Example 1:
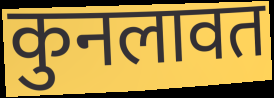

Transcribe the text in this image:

कुनलावत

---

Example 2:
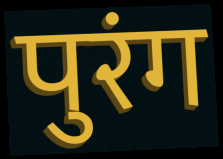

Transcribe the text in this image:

पुरंग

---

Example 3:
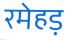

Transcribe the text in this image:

रमेहड़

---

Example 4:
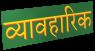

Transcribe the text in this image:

व्यावहारिक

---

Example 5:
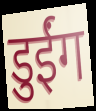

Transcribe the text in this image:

डुईंग